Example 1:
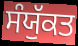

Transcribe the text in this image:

ਸੰਯੁੱਕਤ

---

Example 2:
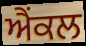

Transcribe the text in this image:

ਐਂਕਲ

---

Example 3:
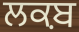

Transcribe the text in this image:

ਲਕ਼ਬ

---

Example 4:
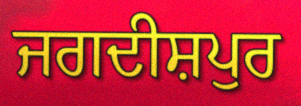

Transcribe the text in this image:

ਜਗਦੀਸ਼ਪੁਰ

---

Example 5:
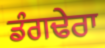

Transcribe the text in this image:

ਡੰਗਢੇਰਾ